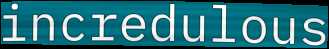
incredulous